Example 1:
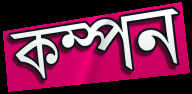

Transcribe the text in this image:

কম্পন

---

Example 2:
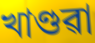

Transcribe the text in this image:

খাণ্ডৱা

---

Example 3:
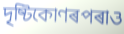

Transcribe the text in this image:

দৃষ্টিকোণৰপৰাও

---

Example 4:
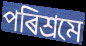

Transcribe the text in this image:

পৰিশ্ৰমে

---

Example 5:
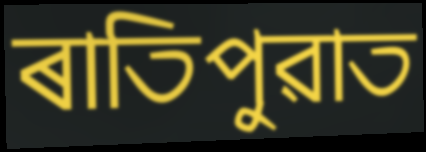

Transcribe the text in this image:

ৰাতিপুৱাত